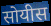
सोयीस